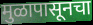
मुळापासूनचा